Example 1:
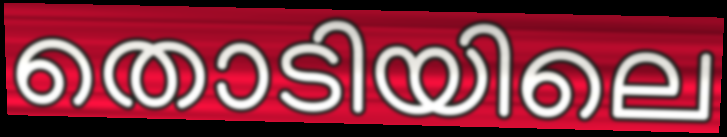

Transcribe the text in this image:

തൊടിയിലെ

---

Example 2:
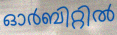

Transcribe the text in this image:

ഓർബിറ്റിൽ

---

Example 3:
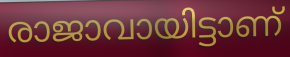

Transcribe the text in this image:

രാജാവായിട്ടാണ്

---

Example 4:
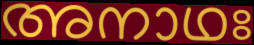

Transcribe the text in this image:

അനാഥഃ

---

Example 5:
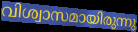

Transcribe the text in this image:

വിശ്വാസമായിരുന്നു